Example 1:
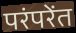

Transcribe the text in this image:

परंपरेंत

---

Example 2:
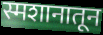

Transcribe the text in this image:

स्मशानातून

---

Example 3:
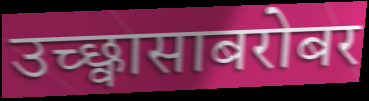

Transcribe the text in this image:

उच्छ्वासाबरोबर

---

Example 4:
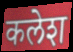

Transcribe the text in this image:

कलेश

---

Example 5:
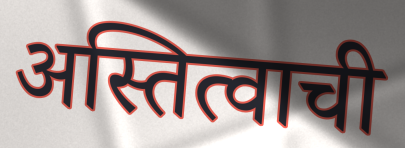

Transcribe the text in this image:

अस्तित्वाची